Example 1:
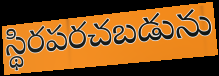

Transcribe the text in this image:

స్థిరపరచబడును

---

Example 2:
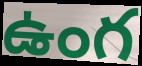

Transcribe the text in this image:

ఉంగ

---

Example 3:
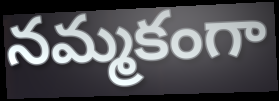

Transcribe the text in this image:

నమ్మకంగా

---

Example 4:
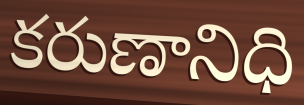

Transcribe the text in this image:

కరుణానిధి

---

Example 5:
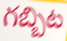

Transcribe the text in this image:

గబ్బిట